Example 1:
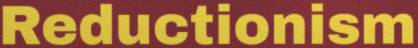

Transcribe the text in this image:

Reductionism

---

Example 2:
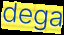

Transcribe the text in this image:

dega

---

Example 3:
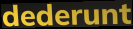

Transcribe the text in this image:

dederunt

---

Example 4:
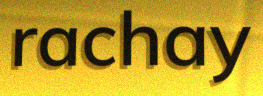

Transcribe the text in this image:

rachay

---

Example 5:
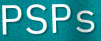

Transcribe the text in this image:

PSPs